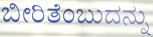
ಬೀರಿತೆಂಬುದನ್ನು